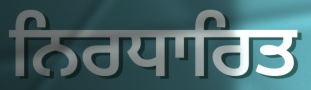
ਨਿਰਧਾਰਿਤ